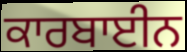
ਕਾਰਬਾਈਨ